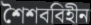
শৈশববিহীন